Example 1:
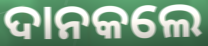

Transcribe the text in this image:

ଦାନକଲେ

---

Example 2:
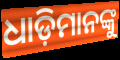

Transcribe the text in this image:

ଧାଡ଼ିମାନଙ୍କୁ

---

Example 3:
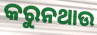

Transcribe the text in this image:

କରୁନଥାଉ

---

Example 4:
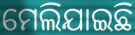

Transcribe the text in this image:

ମେଲିଯାଇଛି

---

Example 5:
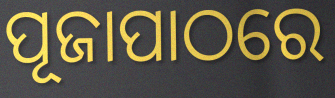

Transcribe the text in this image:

ପୂଜାପାଠରେ